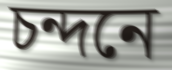
চন্দনে